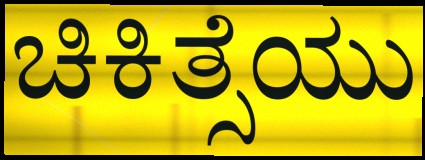
ಚಿಕಿತ್ಸೆಯು